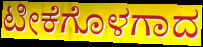
ಟೀಕೆಗೊಳಗಾದ